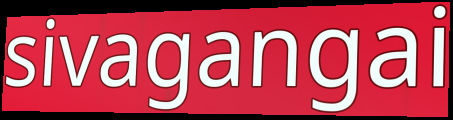
sivagangai